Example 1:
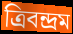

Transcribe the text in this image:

ত্রিবন্দ্রম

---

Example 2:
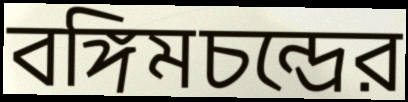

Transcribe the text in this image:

বঙ্গিমচন্দ্রের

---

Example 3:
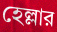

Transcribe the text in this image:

হেল্লার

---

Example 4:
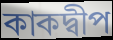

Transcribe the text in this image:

কাকদ্বীপ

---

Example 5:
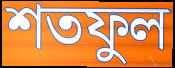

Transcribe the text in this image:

শতফুল